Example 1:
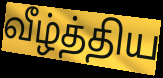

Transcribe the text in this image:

வீழ்த்திய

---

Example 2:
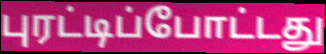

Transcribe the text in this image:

புரட்டிப்போட்டது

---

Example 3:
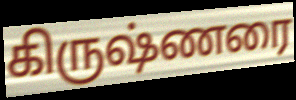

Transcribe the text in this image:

கிருஷ்ணரை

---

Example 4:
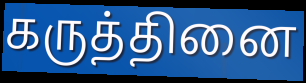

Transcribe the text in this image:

கருத்தினை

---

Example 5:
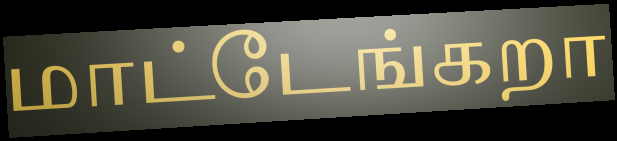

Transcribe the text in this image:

மாட்டேங்கறா